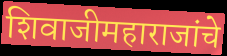
शिवाजीमहाराजांचे